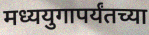
मध्ययुगापर्यंतच्या